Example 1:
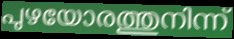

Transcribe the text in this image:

പുഴയോരത്തുനിന്ന്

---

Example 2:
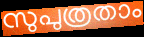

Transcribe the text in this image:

സുപുത്രതാം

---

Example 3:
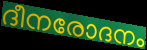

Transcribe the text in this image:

ദീനരോദനം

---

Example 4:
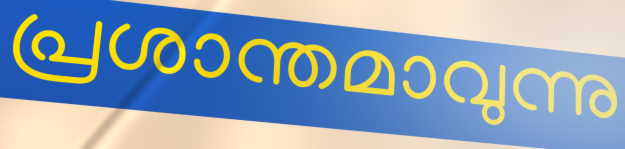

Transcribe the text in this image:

പ്രശാന്തമാവുന്നു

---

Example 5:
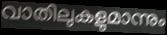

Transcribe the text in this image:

വാതിലുകളുമാന്നും